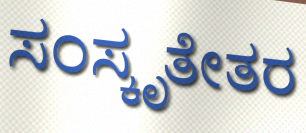
ಸಂಸ್ಕೃತೇತರ